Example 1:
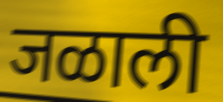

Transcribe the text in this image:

जळाली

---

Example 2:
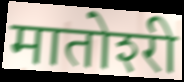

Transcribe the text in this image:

मातोश्री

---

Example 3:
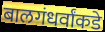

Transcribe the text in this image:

बालगंधर्वांकडे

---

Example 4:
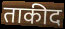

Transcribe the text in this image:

ताकीद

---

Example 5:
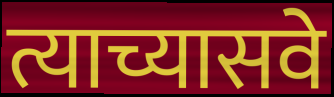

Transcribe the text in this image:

त्याच्यासवे